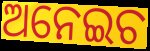
ଅନେଇଚ